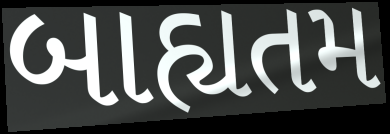
બાહ્યતમ